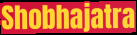
Shobhajatra